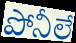
పోనీలే